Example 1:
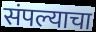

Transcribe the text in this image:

संपल्याचा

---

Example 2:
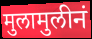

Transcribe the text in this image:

मुलामुलीनं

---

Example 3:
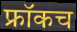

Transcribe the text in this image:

फ्रॉकच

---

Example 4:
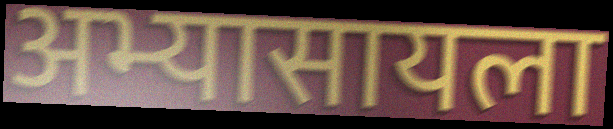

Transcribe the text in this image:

अभ्यासायला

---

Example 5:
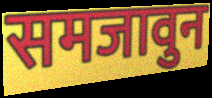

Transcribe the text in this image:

समजावुन